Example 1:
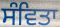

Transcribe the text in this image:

ਸੰਵਿਤਾ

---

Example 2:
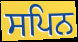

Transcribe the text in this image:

ਸਪਿਨ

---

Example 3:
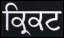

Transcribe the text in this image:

ਕ੍ਰਿਕਟ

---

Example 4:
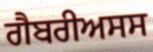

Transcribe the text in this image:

ਗੈਬਰੀਅਸਸ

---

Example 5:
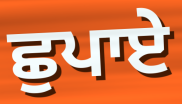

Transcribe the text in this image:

ਛੁਪਾਏ